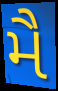
મૈ